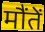
मौंतें